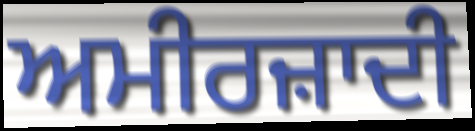
ਅਮੀਰਜ਼ਾਦੀ